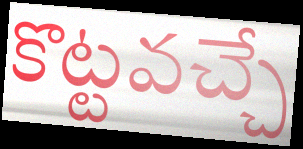
కొట్టవచ్చే